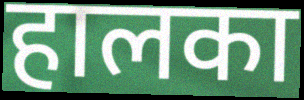
हालका